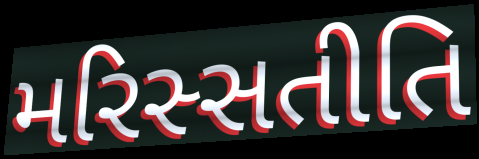
મરિસ્સતીતિ